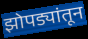
झोपड्यांतून